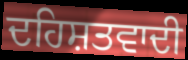
ਦਹਿਸ਼ਤਵਾਦੀ